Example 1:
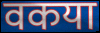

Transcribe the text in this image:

वकया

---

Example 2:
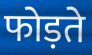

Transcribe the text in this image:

फोड़ते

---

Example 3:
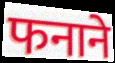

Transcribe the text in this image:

फनाने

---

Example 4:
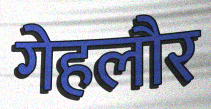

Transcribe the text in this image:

गेहलौर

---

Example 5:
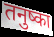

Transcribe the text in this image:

तनुष्का